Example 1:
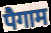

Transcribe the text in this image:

पैगाम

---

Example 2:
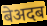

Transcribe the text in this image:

बेअदब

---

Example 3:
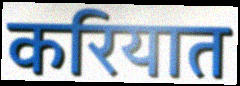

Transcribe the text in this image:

करियात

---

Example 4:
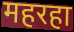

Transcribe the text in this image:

महरहा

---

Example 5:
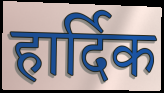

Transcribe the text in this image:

हार्दिक